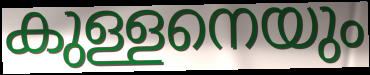
കുള്ളനെയും